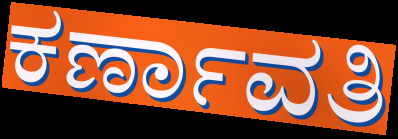
ಕರ್ಣಾವತಿ